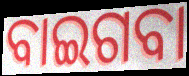
ବାଇଗବା